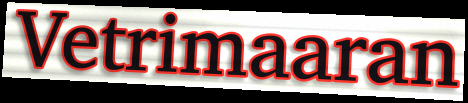
Vetrimaaran